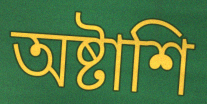
অষ্টাশি